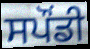
ਸਪੌਂਡੀ